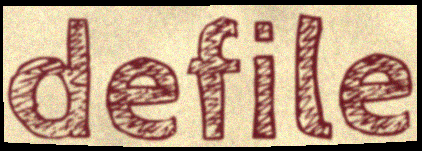
defile